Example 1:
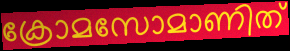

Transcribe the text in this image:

ക്രോമസോമാണിത്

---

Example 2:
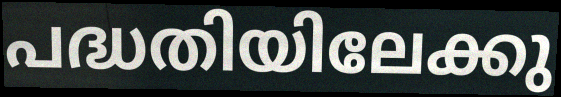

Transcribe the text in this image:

പദ്ധതിയിലേക്കു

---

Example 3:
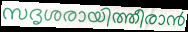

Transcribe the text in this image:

സദൃശരായിത്തീരാൻ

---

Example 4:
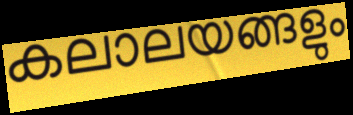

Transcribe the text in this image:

കലാലയങ്ങളും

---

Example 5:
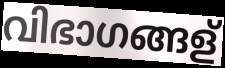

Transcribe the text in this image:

വിഭാഗങ്ങള്